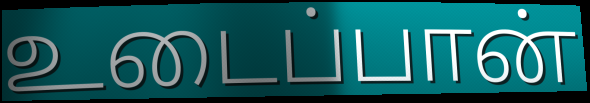
உடைப்பான்